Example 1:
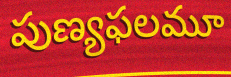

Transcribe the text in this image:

పుణ్యఫలమూ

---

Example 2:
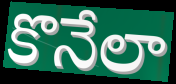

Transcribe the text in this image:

కొనేలా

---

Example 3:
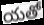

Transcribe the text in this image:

యతో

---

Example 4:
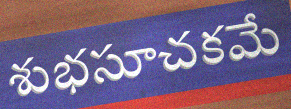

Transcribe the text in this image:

శుభసూచకమే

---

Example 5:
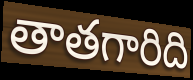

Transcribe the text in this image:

తాతగారిది